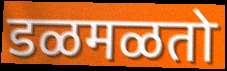
डळमळतो